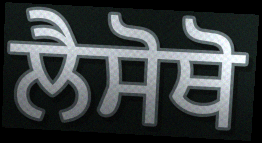
ਲੈਸੋਥੋ